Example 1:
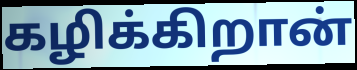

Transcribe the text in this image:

கழிக்கிறான்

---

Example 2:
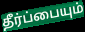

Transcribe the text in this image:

தீர்ப்பையும்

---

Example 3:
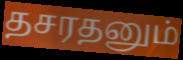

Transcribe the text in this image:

தசரதனும்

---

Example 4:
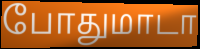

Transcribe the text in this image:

போதுமாடா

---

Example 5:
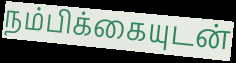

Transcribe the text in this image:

நம்பிக்கையுடன்